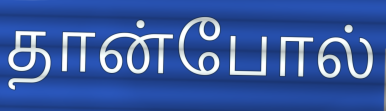
தான்போல்